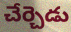
చేర్చెడు